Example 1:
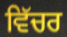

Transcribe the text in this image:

ਵਿੱਚਰ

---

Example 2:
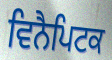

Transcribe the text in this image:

ਵਿਨੈਪਿਟਕ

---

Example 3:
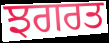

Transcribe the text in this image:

ਝਗਰਤ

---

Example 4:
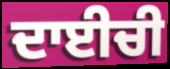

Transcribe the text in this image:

ਦਾਈਚੀ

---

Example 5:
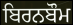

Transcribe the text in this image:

ਬਿਰਨਬੌਮ